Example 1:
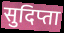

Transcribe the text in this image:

सुदिप्ता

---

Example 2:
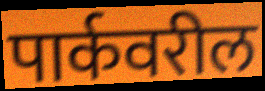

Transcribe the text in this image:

पार्कवरील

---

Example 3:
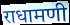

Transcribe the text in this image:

राधामणी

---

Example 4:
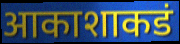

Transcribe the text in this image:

आकाशाकडं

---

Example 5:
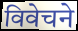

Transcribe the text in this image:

विवेचने